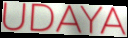
UDAYA